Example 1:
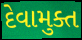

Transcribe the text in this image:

દેવામુક્ત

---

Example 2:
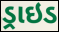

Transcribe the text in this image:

ડ્રાઇડ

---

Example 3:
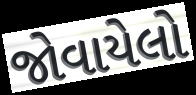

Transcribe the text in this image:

જોવાયેલો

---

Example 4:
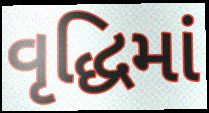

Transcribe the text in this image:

વૃદ્ધિમાં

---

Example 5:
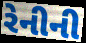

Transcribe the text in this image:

રેનીની